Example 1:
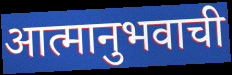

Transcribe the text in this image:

आत्मानुभवाची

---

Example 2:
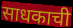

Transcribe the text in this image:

साधकाची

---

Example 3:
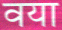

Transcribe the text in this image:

वया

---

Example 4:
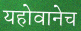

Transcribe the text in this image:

यहोवानेच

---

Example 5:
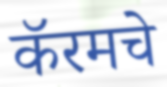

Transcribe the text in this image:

कॅरमचे